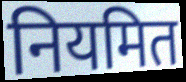
नियमित